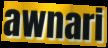
awnari